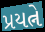
પ્રયત્ને